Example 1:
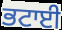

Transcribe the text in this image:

ਭਟਾਈ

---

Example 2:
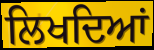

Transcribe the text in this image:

ਲਿਖਦਿਆਂ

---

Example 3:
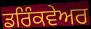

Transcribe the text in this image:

ਡਰਿੰਕਵੇਅਰ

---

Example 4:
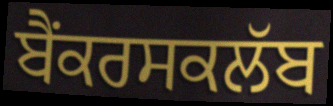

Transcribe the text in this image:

ਬੈਂਕਰਸਕਲੱਬ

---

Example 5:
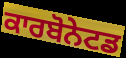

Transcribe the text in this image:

ਕਾਰਬੋਨੇਟਡ